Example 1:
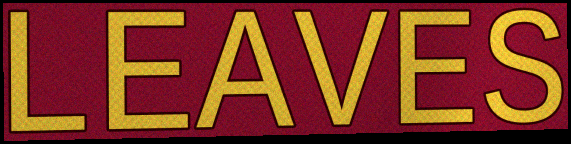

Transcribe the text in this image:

LEAVES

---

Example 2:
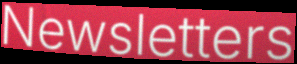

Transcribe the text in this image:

Newsletters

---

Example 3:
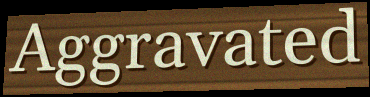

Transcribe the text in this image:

Aggravated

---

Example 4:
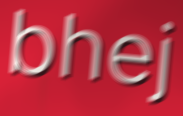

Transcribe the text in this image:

bhej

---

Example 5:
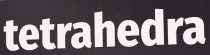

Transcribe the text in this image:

tetrahedra